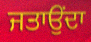
ਜਤਾਉਂਦਾ